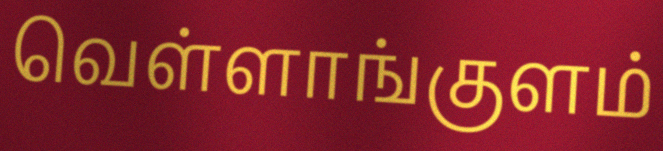
வெள்ளாங்குளம்